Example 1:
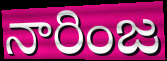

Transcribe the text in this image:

నారింజ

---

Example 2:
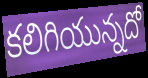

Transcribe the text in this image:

కలిగియున్నదో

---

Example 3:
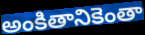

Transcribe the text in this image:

అంకితానికెంతా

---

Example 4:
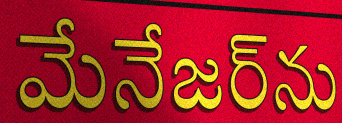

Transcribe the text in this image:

మేనేజర్‌ను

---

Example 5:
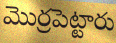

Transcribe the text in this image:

మొర్రపెట్టారు